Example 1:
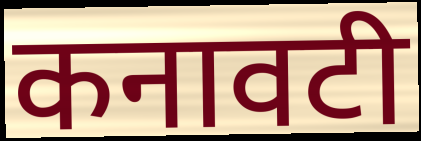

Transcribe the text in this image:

कनावटी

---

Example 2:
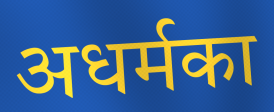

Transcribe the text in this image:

अधर्मका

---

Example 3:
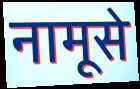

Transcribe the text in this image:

नामूसे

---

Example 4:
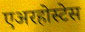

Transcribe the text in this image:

एअरहोस्टेस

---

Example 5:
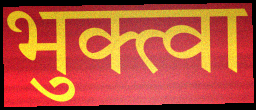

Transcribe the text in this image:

भुक्त्वा